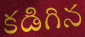
కడిగిన